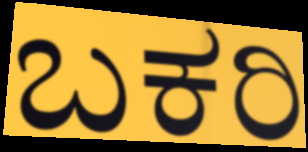
ಬಕರಿ